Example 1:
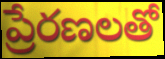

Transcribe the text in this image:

ప్రేరణలతో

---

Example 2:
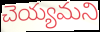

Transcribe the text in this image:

చెయ్యమని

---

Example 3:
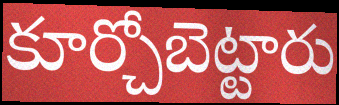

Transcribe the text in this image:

కూర్చోబెట్టారు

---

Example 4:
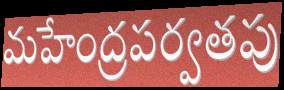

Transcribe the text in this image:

మహేంద్రపర్వతపు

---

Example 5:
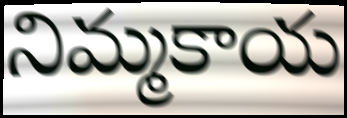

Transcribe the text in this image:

నిమ్మకాయ